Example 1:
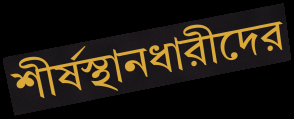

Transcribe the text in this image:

শীর্ষস্থানধারীদের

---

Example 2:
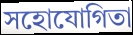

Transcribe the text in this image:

সহোযোগিতা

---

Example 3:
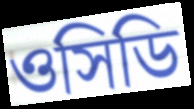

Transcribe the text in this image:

ওসিডি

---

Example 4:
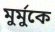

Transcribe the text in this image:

মুর্মুকে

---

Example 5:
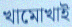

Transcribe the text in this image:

খামোখাই